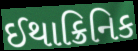
ઈથાક્રિનિક